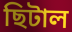
ছিটাল